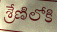
శ్రేణిలోకి